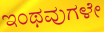
ಇಂಥವುಗಳೇ